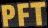
PFT